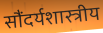
सौंदर्यशास्त्रीय